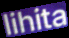
lihita